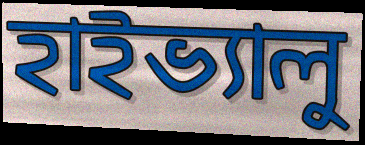
হাইভ্যালু